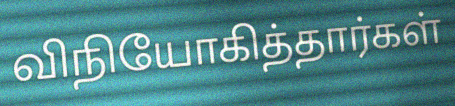
விநியோகித்தார்கள்